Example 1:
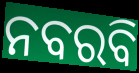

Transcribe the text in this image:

ନବରବି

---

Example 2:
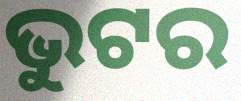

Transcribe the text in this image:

ଭୁଟର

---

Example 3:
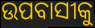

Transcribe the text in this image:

ଉପବାସୀକୁ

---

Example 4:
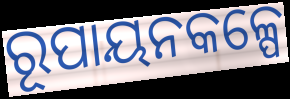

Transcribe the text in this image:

ରୂପାୟନକଳ୍ପେ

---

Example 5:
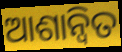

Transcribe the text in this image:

ଆଶାନ୍ବିତ